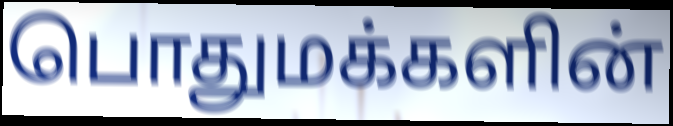
பொதுமக்களின்